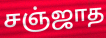
சஞ்ஜாத